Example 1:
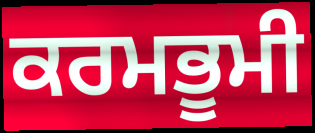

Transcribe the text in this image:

ਕਰਮਭੂਮੀ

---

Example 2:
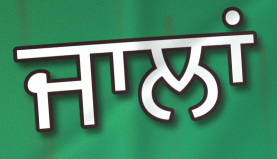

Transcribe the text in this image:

ਜਾਲਾਂ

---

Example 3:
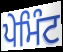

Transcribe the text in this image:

ਪੇਮਿੰਟ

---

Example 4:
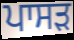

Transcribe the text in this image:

ਪਾਸੜ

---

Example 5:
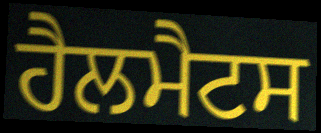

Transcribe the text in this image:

ਹੈਲਮੈਟਸ